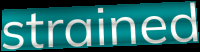
strained